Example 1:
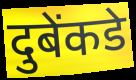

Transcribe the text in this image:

दुबेंकडे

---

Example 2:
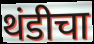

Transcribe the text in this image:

थंडीचा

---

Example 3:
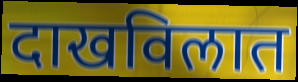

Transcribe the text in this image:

दाखविलात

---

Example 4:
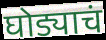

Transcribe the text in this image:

घोड्याचं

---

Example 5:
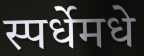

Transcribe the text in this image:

स्पर्धेमधे